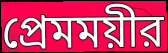
প্রেমময়ীর